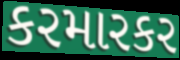
કરમારકર